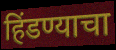
हिंडण्याचा